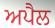
ਅਪੈਲ